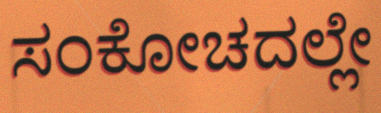
ಸಂಕೋಚದಲ್ಲೇ